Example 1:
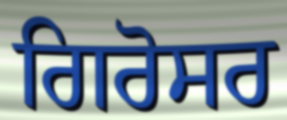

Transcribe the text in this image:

ਗਿਰੋਸਰ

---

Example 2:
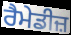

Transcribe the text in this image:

ਰੈਮੇਡੀਜ਼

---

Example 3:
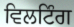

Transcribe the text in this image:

ਵਿਲਟਿੰਗ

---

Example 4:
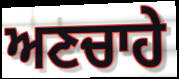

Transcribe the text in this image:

ਅਣਚਾਹੇ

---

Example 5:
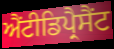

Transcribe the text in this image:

ਐਂਟੀਡਿਪ੍ਰੈਸੈਂਟ